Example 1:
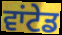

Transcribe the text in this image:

ਵਾਂਟੇਡ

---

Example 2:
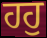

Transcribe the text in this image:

ਹਹੁ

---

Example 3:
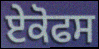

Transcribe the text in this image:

ਏਕੋਫਸ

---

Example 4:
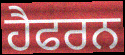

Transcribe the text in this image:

ਹੈਫਰਨ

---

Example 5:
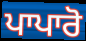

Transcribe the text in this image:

ਪਾਪਾਰੋ